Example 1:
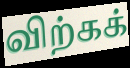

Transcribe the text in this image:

விற்கக்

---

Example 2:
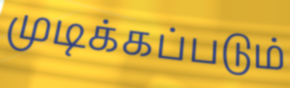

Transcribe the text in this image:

முடிக்கப்படும்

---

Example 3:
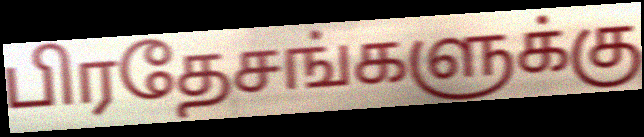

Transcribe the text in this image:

பிரதேசங்களுக்கு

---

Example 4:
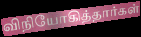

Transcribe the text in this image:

விநியோகித்தார்கள்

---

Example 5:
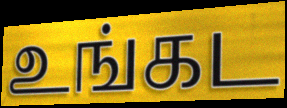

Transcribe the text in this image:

உங்கட